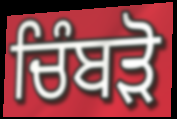
ਚਿੰਬੜੋ